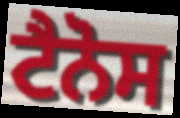
ਟੈਨੋਸ